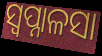
ସ୍ୱପ୍ନାଳସା